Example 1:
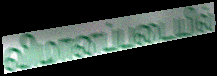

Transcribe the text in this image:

விமானப்படையில்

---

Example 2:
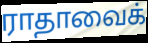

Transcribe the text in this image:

ராதாவைக்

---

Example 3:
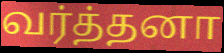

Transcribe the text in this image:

வர்த்தனா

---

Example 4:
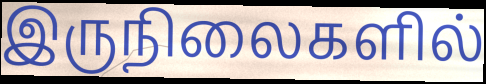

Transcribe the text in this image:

இருநிலைகளில்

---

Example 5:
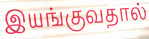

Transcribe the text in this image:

இயங்குவதால்